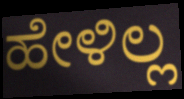
ಹೇಳಿಲ್ಲ